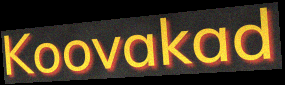
Koovakad